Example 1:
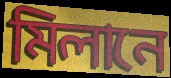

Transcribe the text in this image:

মিলানে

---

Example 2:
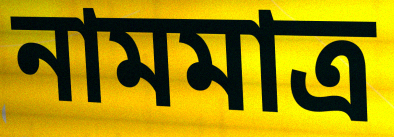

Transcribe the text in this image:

নামমাত্র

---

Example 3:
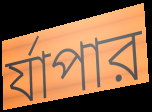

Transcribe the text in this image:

র্যাপার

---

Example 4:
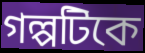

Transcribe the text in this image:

গল্পটিকে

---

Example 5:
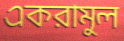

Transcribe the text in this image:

একরামুল